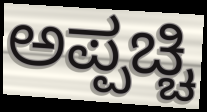
ಅಪ್ಪಚ್ಚಿ